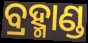
ବ୍ରହ୍ମାଣ୍ଡ